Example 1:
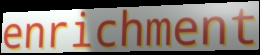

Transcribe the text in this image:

enrichment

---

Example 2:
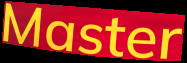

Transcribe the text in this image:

Master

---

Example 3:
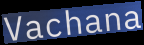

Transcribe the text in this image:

Vachana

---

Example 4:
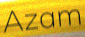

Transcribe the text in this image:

Azam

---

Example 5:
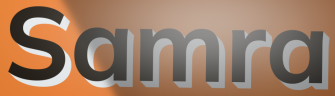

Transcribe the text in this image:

Samra